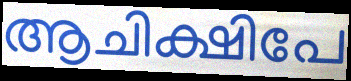
ആചിക്ഷിപേ